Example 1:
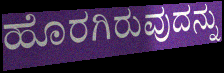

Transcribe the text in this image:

ಹೊರಗಿರುವುದನ್ನು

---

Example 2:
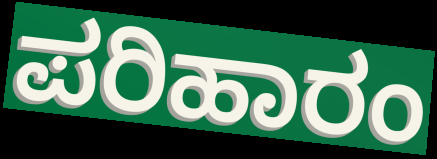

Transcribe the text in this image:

ಪರಿಹಾರಂ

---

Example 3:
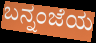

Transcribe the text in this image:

ಬನ್ನಂಜೆಯ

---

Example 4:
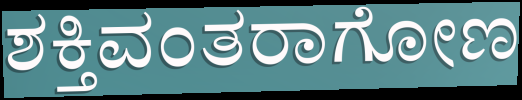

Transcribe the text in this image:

ಶಕ್ತಿವಂತರಾಗೋಣ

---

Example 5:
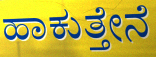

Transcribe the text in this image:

ಹಾಕುತ್ತೇನೆ